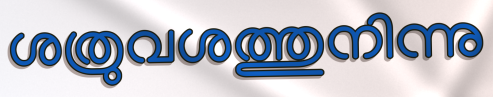
ശത്രുവശത്തുനിന്നു